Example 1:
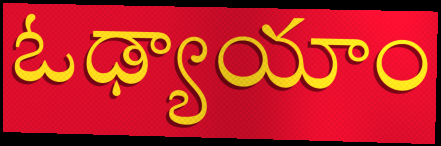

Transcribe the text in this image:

ఓఢ్యాయాం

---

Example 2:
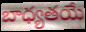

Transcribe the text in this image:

బాధ్యతయే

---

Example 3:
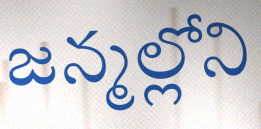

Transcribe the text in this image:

జన్మల్లోని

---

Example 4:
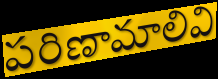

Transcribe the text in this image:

పరిణామాలివి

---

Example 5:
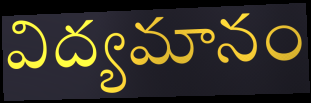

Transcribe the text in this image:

విద్యమానం